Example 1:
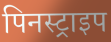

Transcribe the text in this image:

पिनस्ट्राइप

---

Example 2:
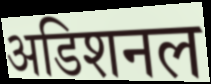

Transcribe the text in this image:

अडिशनल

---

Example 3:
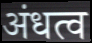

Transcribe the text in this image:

अंधत्व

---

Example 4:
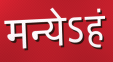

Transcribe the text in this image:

मन्येऽहं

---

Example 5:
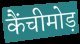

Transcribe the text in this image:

कैंचीमोड़